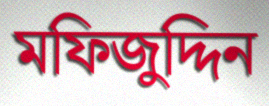
মফিজুদ্দিন